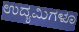
ಉದ್ಯಮಿಗಳೂ